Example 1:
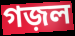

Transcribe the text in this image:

গজ়ল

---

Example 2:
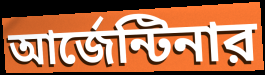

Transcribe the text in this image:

আর্জেন্টিনার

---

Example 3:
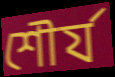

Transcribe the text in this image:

শৌর্য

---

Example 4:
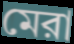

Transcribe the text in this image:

মেরা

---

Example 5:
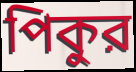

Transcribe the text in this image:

পিকুর